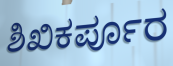
ಶಿಖಿಕರ್ಪೂರ